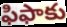
ఫిఫాకు